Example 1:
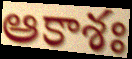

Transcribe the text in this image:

ఆకాశః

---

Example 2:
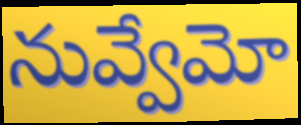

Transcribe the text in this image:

నువ్వేమో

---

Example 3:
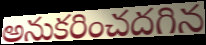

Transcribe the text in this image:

అనుకరించదగిన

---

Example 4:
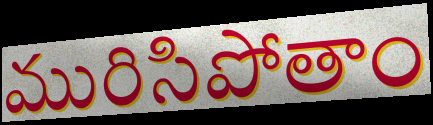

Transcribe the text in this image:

మురిసిపోతాం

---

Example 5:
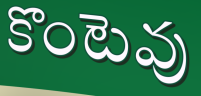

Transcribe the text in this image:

కొంటెవు